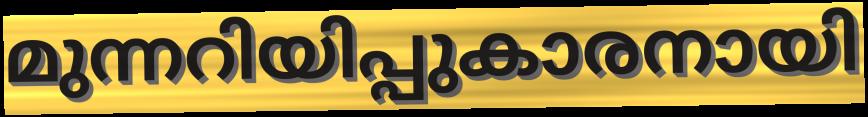
മുന്നറിയിപ്പുകാരനായി